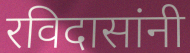
रविदासांनी